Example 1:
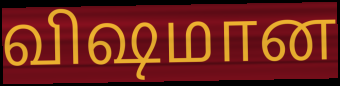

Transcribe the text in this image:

விஷமான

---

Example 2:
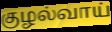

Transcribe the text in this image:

குழல்வாய்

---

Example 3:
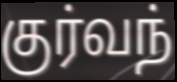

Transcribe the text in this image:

குர்வந்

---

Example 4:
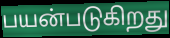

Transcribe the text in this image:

பயன்படுகிறது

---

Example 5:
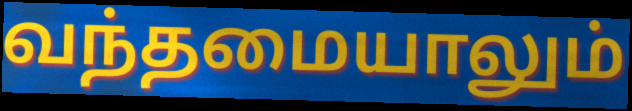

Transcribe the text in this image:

வந்தமையாலும்